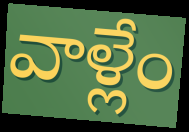
వాళ్లేం